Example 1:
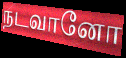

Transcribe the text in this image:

நடவானோ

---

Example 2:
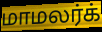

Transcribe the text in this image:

மாமலர்க்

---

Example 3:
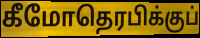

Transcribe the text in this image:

கீமோதெரபிக்குப்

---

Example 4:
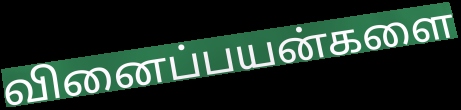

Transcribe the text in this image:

வினைப்பயன்களை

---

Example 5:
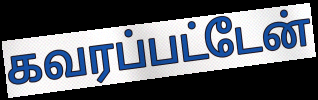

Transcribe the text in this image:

கவரப்பட்டேன்